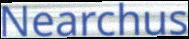
Nearchus